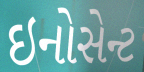
ઇનોસેન્ટ